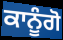
ਕਾਨੂੰਗੋ